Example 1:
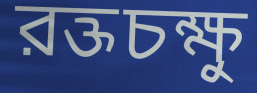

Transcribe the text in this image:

রক্তচক্ষু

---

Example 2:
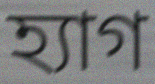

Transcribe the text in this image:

হ্যাগ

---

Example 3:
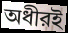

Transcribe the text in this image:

অধীরই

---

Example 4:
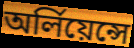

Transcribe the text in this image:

অর্লিয়েন্সে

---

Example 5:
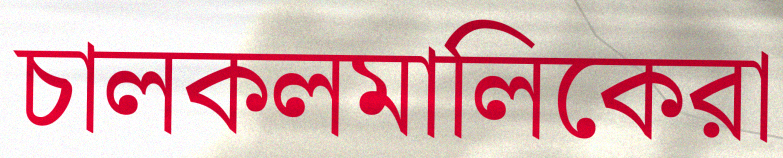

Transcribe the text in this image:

চালকলমালিকেরা